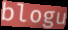
blogu